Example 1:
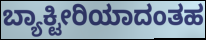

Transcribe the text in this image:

ಬ್ಯಾಕ್ಟೀರಿಯಾದಂತಹ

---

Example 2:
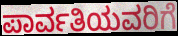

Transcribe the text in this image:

ಪಾರ್ವತಿಯವರಿಗೆ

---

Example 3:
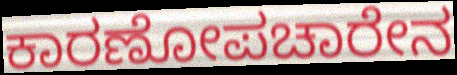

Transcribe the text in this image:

ಕಾರಣೋಪಚಾರೇನ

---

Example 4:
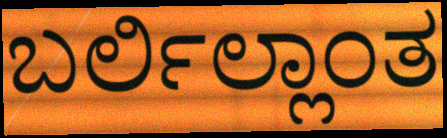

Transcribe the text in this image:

ಬರ್ಲಿಲ್ಲಾಂತ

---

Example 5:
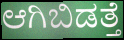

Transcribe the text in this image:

ಆಗಿಬಿಡತ್ತೆ